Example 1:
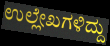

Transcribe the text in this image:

ಉಲ್ಲೇಖಗಳಿದ್ದು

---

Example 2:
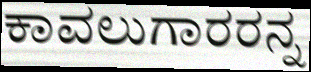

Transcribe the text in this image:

ಕಾವಲುಗಾರರನ್ನ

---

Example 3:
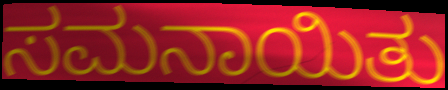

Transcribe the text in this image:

ಸಮನಾಯಿತು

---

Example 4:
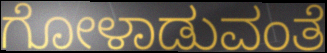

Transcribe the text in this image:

ಗೋಳಾಡುವಂತೆ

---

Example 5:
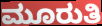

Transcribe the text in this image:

ಮೂರುತಿ